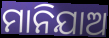
ମାନିଯାଅ